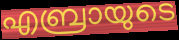
എബ്രായുടെ